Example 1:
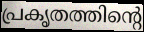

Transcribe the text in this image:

പ്രകൃതത്തിന്റെ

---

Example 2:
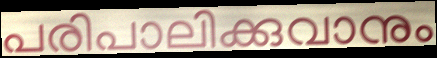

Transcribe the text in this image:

പരിപാലിക്കുവാനും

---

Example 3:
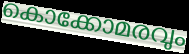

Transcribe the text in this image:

കൊക്കോമരവും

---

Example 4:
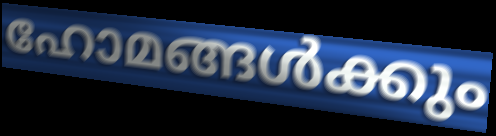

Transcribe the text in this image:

ഹോമങ്ങൾക്കും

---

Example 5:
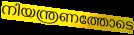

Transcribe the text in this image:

നിയന്ത്രണത്തോടെ